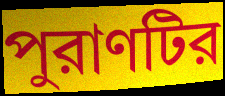
পুরাণটির